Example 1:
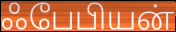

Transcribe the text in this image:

ஃபேபியன்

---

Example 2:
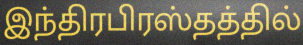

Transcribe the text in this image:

இந்திரபிரஸ்தத்தில்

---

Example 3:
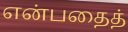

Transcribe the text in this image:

என்பதைத்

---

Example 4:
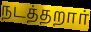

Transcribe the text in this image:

நடத்தறார்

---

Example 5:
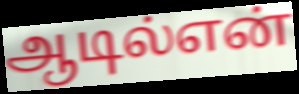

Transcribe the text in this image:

ஆடில்என்